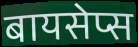
बायसेप्स